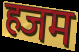
हजम